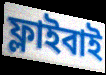
ফ্লাইবাই